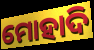
ମୋହାଦି